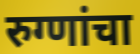
रुग्णांचा